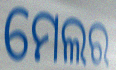
ମେଲର